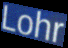
Lohr